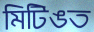
মিটিঙত